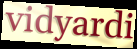
vidyardi